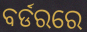
ବର୍ଡରରେ